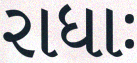
રાધાઃ